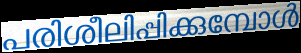
പരിശീലിപ്പിക്കുമ്പോൾ